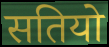
सतियो